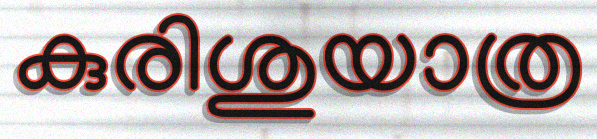
കുരിശുയാത്ര